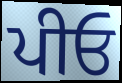
ਪੀਓ